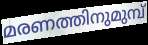
മരണത്തിനുമുമ്പ്